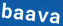
baava